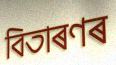
বিতাৰণৰ